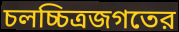
চলচ্চিত্রজগতের